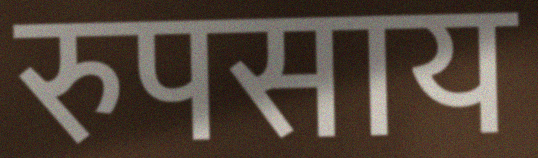
रुपसाय